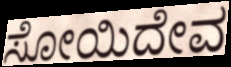
ಸೋಯಿದೇವ